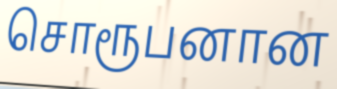
சொரூபனான